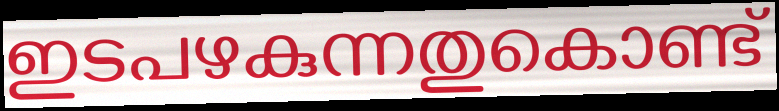
ഇടപഴകുന്നതുകൊണ്ട്